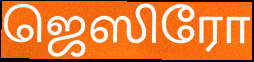
ஜெஸிரோ